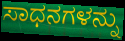
ಸಾಧನಗಳನ್ನು